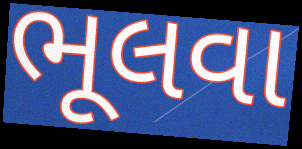
ભૂલવા